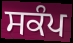
ਸਕੰਪ